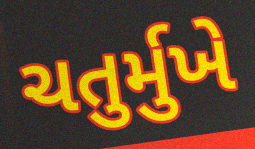
ચતુર્મુખે